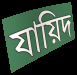
যায়িদ